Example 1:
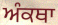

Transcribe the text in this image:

ਅੰਕਥਾ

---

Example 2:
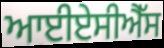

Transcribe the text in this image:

ਆਈਏਸੀਐੱਸ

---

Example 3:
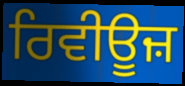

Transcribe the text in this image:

ਰਿਵੀਊਜ਼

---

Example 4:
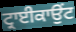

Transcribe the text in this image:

ਟ੍ਰਾਈਕਾਉਂਟ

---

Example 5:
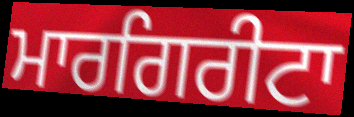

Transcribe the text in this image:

ਮਾਰਗਿਰੀਟਾ